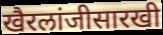
खैरलांजीसारखी